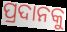
ପ୍ରଦାନକୁ